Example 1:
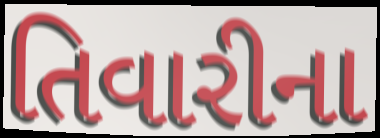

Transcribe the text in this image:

તિવારીના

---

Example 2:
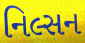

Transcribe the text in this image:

નિલ્સન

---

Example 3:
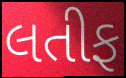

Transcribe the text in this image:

લતીફ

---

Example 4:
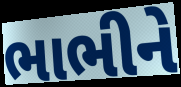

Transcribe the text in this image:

ભાભીને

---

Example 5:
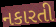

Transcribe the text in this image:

નકારતી